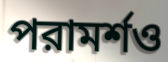
পরামর্শও